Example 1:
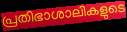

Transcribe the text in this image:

പ്രതിഭാശാലികളുടെ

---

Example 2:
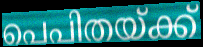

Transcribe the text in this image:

പെപിതയ്ക്ക്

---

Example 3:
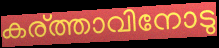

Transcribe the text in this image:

കര്ത്താവിനോടു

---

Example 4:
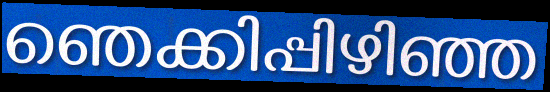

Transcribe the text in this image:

ഞെക്കിപ്പിഴിഞ്ഞ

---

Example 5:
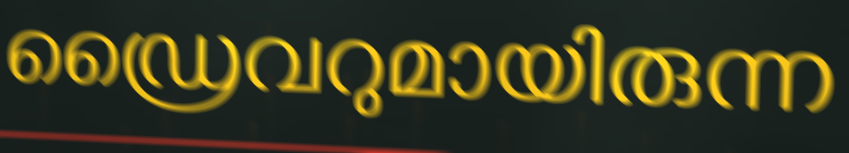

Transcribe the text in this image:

ഡ്രൈവറുമായിരുന്ന